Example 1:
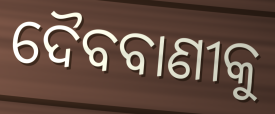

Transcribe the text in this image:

ଦୈବବାଣୀକୁ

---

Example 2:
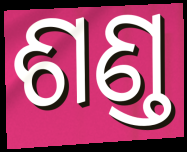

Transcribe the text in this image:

ଶଣ୍ଡ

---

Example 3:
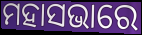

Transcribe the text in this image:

ମହାସଭାରେ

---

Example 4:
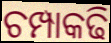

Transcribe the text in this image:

ଚମ୍ପାକଢି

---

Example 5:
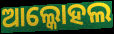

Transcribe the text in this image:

ଆଲ୍କୋହଲ